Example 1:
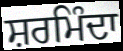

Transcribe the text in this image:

ਸ਼ਰਮਿੰਦਾ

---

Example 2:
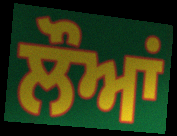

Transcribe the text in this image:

ਲੌਆਂ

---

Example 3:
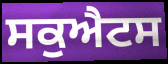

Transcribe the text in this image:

ਸਕੁਐਟਸ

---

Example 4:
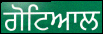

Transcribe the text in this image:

ਗੋਟਿਆਲ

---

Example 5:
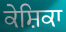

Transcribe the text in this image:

ਕੇਸ਼ਿਕਾ